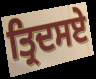
ਤ੍ਰਿਦਸਏ